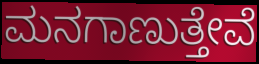
ಮನಗಾಣುತ್ತೇವೆ